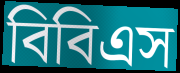
বিবিএস